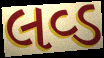
લવ્ડ